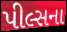
પીલ્સના